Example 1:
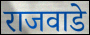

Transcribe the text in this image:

राजवाडे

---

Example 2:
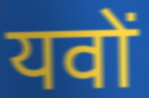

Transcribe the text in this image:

यवों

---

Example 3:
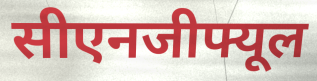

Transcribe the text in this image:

सीएनजीफ्यूल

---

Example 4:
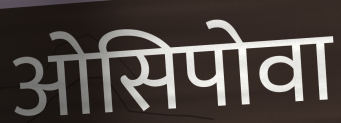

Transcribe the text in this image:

ओसिपोवा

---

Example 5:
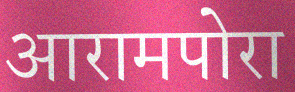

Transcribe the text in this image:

आरामपोरा